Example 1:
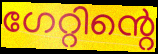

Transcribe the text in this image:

ഗേറ്റിന്റെ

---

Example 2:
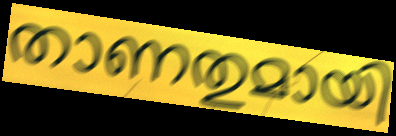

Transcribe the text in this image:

താണതുമായി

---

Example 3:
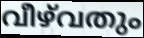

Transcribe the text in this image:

വീഴ്‌വതും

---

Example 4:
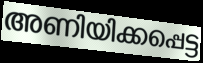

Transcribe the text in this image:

അണിയിക്കപ്പെട്ട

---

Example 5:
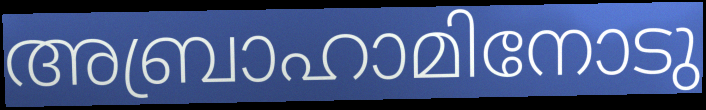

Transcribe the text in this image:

അബ്രാഹാമിനോടു